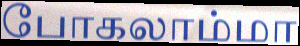
போகலாம்மா